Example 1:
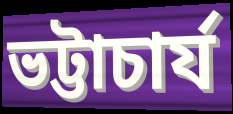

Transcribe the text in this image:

ভট্টাচাৰ্য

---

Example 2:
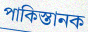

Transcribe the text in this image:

পাকিস্তানক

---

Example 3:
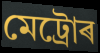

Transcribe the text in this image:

মেট্ৰোৰ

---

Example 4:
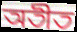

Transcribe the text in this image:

অতীত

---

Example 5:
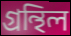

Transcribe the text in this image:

গ্ৰন্থিল